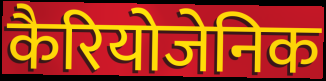
कैरियोजेनिक